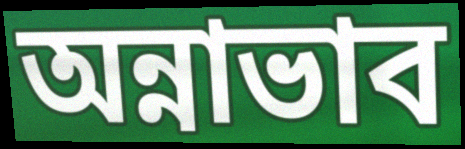
অন্নাভাব